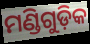
ମଣ୍ଡିଗୁଡ଼ିକ